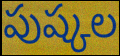
పుష్కల